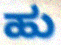
ಹು